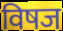
विषज